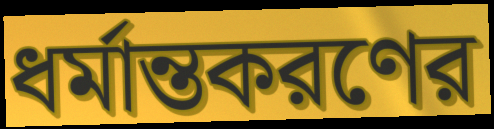
ধর্মান্তকরণের